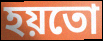
হয়তো